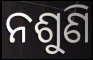
ନଶୁଣି